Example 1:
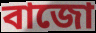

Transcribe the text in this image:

বাজো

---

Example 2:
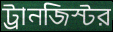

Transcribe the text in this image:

ট্রানজিস্টর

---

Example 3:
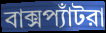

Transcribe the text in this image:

বাক্সপ্যাঁটরা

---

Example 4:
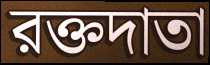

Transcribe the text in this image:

রক্তদাতা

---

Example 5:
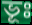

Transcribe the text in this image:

ভূঃ